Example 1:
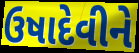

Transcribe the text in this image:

ઉષાદેવીને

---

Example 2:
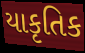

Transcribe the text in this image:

યાકૃતિક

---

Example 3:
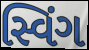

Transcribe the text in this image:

સ્વિંગ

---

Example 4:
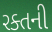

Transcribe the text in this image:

રક્તની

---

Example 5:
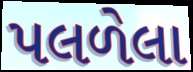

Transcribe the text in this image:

પલળેલા